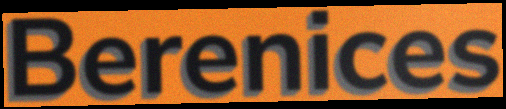
Berenices